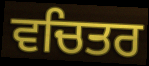
ਵਚਿਤਰ